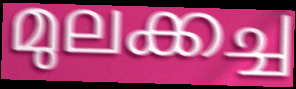
മുലക്കച്ച